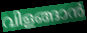
വിളങ്ങാൻ